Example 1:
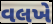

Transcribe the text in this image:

વલખે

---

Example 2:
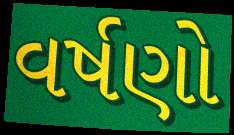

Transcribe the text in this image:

વર્ષણો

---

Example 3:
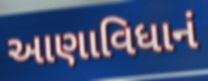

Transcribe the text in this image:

આણાવિધાનં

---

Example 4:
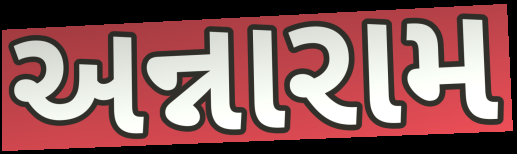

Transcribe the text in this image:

અન્નારામ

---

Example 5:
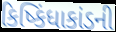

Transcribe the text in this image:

કિષ્કિંધાકાંડની